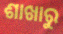
ଶାଖାରୁ